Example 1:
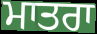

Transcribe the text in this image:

ਮਾਤਰਾ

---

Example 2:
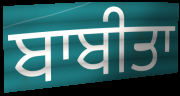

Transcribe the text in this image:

ਬਾਬੀਤਾ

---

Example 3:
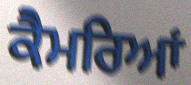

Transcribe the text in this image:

ਕੈਮਰਿਆਂ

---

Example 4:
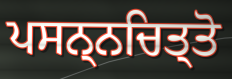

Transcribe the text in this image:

ਪਸਨ੍ਨਚਿਤ੍ਤੋ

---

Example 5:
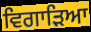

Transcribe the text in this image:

ਵਿਗਾੜਿਆ